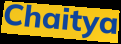
Chaitya